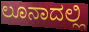
ಲೂನಾದಲ್ಲಿ